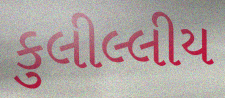
કુલીલ્લીય